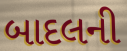
બાદલની